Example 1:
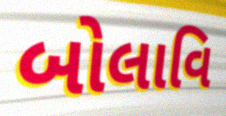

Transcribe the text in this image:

બોલાવિ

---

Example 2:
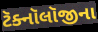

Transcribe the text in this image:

ટૅક્નૉલૉજીના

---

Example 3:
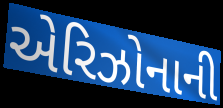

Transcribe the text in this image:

એરિઝોનાની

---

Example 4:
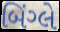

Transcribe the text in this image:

બિંગ્લે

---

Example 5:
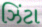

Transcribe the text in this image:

ઝિંટા